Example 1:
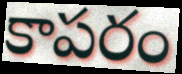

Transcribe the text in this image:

కాపరం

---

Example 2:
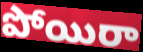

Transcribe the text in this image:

పోయిరా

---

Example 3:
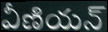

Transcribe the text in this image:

వీణియన్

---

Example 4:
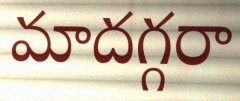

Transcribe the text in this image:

మాదగ్గరా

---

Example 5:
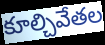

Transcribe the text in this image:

కూల్చివేతల